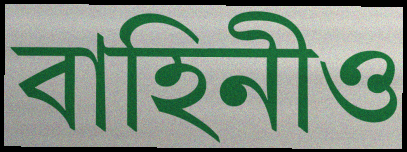
বাহিনীও